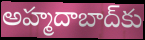
అహ్మదాబాద్‌కు